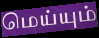
மெய்யும்